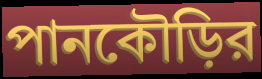
পানকৌড়ির